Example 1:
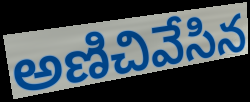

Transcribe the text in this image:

అణిచివేసిన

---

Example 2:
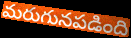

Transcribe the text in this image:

మరుగునపడింది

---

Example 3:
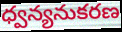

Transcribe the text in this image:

ధ్వన్యనుకరణ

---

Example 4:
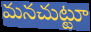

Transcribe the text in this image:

మనచుట్టూ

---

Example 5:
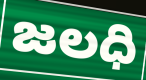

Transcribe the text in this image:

జలధి